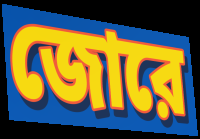
জোরে